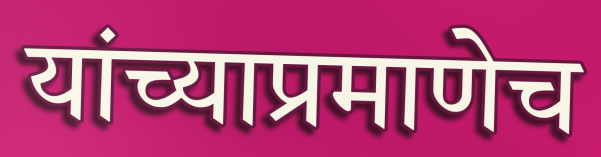
यांच्याप्रमाणेच